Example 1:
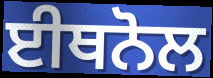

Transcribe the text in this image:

ਈਥਨੋਲ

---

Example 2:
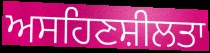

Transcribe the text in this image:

ਅਸਹਿਣਸ਼ੀਲਤਾ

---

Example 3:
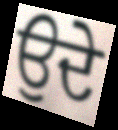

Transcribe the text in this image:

ਉਦੇ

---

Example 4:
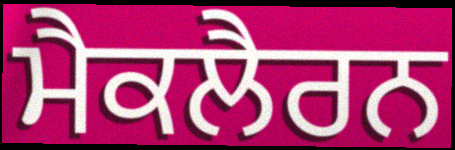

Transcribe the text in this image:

ਮੈਕਲੈਰਨ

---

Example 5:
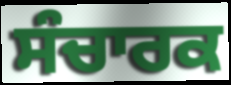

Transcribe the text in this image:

ਸੰਚਾਰਕ